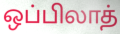
ஒப்பிலாத்